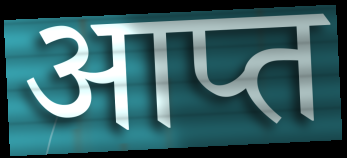
आप्त